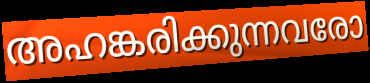
അഹങ്കരിക്കുന്നവരോ